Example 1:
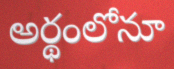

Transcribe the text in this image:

అర్థంలోనూ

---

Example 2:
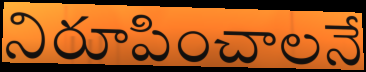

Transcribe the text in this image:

నిరూపించాలనే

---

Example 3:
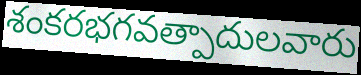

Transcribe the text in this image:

శంకరభగవత్పాదులవారు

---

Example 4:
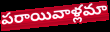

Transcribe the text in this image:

పరాయివాళ్లమా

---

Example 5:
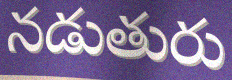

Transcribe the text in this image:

నడుతురు